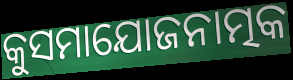
କୁସମାଯୋଜନାତ୍ମକ